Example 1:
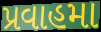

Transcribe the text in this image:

પ્રવાહમા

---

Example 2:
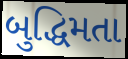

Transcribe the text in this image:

બુદ્ધિમતા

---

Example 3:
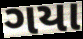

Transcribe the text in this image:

ગયા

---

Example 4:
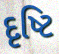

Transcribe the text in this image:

દૃષ્ટિ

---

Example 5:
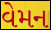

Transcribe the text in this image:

વેમન